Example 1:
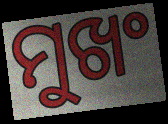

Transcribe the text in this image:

ମୁଖଂ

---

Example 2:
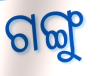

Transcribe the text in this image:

ଗଙ୍ଗୁ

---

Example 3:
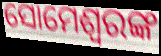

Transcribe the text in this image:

ସୋମେଶ୍ୱରଙ୍କ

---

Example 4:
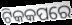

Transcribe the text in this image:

ଟିକକପରେ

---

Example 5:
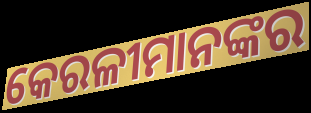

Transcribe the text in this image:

କେରଳୀମାନଙ୍କର